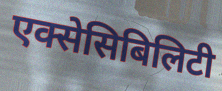
एक्सेसिबिलिटी